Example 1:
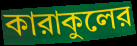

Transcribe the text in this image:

কারাকুলের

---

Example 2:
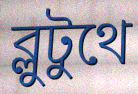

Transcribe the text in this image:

ব্লুটুথে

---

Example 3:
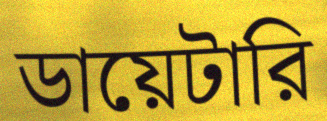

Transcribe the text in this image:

ডায়েটারি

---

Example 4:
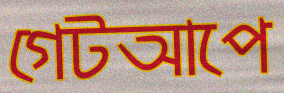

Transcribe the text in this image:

গেটআপে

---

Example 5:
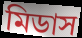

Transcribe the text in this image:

মিডাস